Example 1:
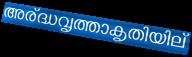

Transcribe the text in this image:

അര്ദ്ധവൃത്താകൃതിയില്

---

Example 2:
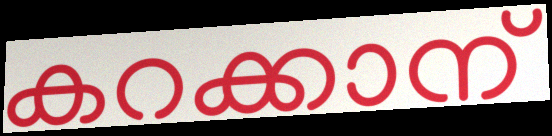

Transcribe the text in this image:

കറക്കാന്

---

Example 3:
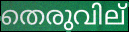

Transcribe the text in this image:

തെരുവില്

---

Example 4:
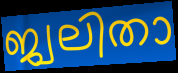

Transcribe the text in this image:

ജ്വലിതാ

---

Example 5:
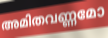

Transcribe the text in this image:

അമിതവണ്ണമോ